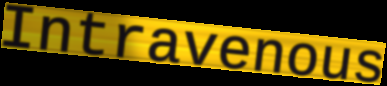
Intravenous